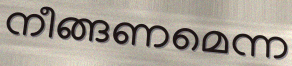
നീങ്ങണമെന്ന